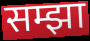
सम्झा